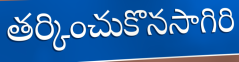
తర్కించుకొనసాగిరి